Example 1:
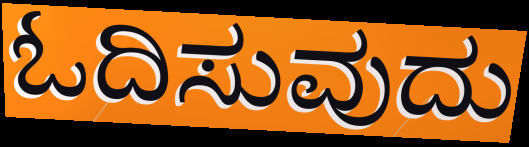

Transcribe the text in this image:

ಓದಿಸುವುದು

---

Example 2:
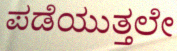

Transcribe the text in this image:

ಪಡೆಯುತ್ತಲೇ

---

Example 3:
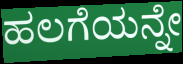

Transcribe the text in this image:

ಹಲಗೆಯನ್ನೇ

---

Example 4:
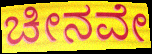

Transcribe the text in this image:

ಚೀನವೇ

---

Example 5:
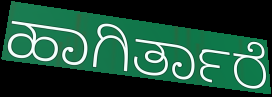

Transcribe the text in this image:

ಹಾಗಿರ್ತಾರೆ